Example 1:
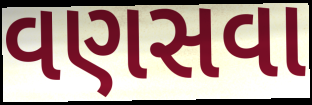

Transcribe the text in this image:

વણસવા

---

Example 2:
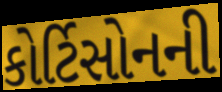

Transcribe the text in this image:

કોર્ટિસોનની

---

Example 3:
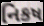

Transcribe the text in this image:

નિકષ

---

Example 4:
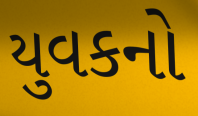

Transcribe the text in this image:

યુવકનો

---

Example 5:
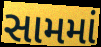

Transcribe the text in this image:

સામમાં